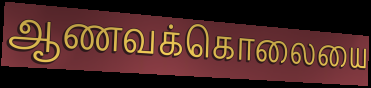
ஆணவக்கொலையை